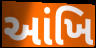
આંખિ